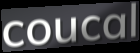
coucal